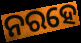
ନରହେ